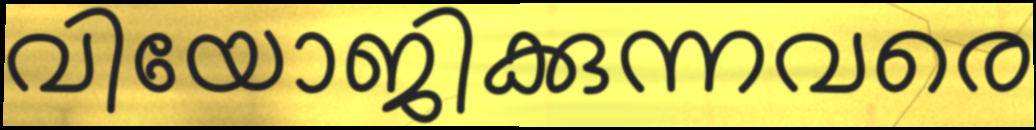
വിയോജിക്കുന്നവരെ